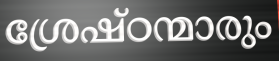
ശ്രേഷ്ഠന്മാരും